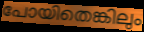
പോയിതെങ്കിലും